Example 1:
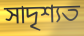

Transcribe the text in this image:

সাদৃশ্যত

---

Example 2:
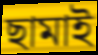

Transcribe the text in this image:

ছামাই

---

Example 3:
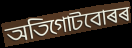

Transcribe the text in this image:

অতিগোটবোৰৰ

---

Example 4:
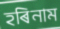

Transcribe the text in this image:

হৰিনাম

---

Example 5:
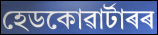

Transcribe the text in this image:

হেডকোৱাৰ্টাৰৰ